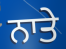
ਨਾਤੇ